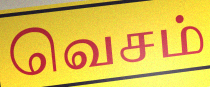
வெசம்